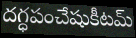
దగ్ధపంచేషుకీటమ్